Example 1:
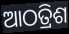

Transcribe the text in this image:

ଆଠତ୍ରିଶ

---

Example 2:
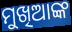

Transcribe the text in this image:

ମୁଖିଆଙ୍କ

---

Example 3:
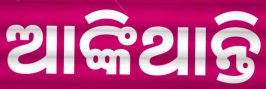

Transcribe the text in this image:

ଆଙ୍କିଥାନ୍ତି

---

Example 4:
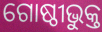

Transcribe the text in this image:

ଗୋଷ୍ଠୀଭୁକ୍ତ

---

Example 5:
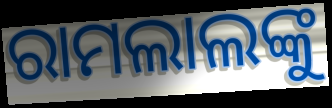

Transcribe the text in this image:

ରାମଲାଲଙ୍କୁ